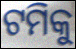
ଟମିକୁ